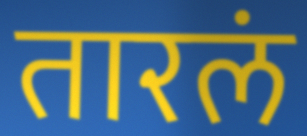
तारलं